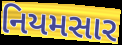
નિયમસાર